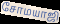
சோமயாஜி